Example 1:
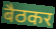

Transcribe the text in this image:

बैठकर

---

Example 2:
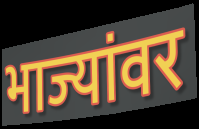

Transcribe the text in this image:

भाज्यांवर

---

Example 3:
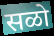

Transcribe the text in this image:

सळो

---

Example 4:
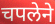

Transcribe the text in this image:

चपलेने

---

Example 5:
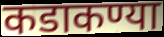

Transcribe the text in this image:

कडाकण्या